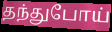
தந்துபோய்